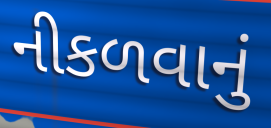
નીકળવાનું